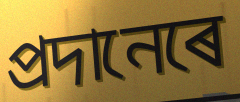
প্ৰদানেৰে